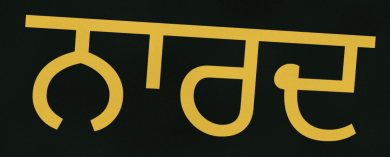
ਨਾਰਦ